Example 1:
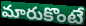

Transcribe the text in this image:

మారుకొంటే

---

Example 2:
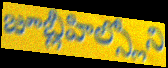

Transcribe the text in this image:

జూబ్లీహిల్స్లోని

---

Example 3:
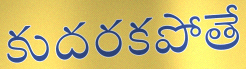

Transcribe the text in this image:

కుదరకపోతే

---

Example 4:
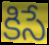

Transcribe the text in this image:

కిసే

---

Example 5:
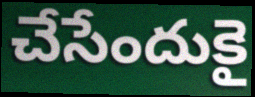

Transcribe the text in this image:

చేసేందుకై